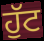
ਹੁੱਟ